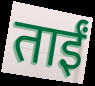
ताईं